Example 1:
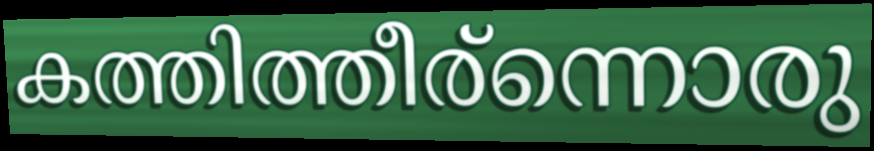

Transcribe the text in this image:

കത്തിത്തീര്ന്നൊരു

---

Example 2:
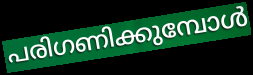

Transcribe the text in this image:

പരിഗണിക്കുമ്പോൾ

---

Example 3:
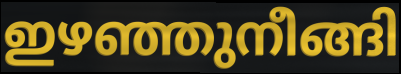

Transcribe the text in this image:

ഇഴഞ്ഞുനീങ്ങി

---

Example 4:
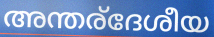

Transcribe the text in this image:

അന്തര്ദേശീയ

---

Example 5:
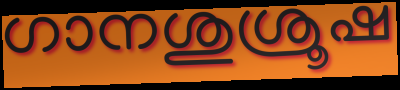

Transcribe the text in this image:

ഗാനശുശ്രൂഷ